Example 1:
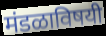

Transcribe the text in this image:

मंडळाविषयी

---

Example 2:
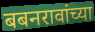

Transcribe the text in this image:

बबनरावांच्या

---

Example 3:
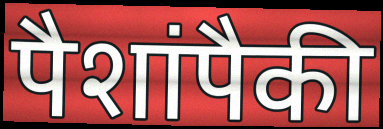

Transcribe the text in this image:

पैशांपैकी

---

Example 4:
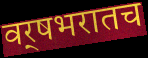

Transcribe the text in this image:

वर्षभरातच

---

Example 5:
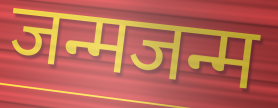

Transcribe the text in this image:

जन्मजन्म